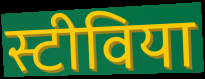
स्‍टीविया